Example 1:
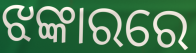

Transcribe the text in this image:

ଝଙ୍କାରରେ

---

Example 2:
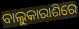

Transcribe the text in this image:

ବାଲୁକାରାଶିରେ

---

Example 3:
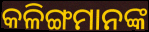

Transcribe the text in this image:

କଳିଙ୍ଗମାନଙ୍କ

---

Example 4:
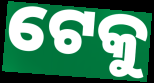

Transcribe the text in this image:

ଟେକୁ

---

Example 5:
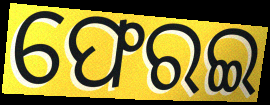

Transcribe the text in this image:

ଫେରଇ